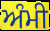
ਅੰਮੀ